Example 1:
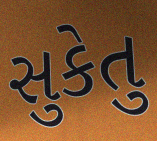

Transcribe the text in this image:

સુકેતુ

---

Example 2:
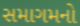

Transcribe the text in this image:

સમાગમનો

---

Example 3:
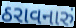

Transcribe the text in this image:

ઠરાવનારું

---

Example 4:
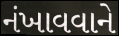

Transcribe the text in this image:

નંખાવવાને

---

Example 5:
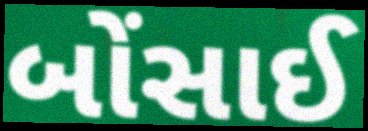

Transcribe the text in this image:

બોંસાઈ